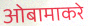
ओबामाकरे